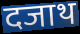
दजाथ